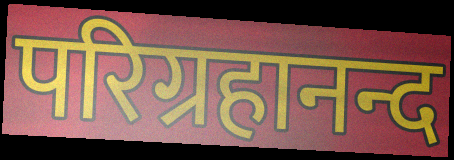
परिग्रहानन्द